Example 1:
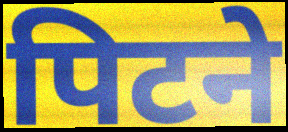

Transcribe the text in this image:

पिटने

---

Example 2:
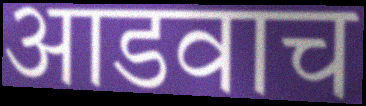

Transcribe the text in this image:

आडवाच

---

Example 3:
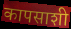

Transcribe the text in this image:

कापसाशी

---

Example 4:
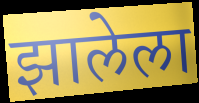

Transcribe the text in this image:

झालेला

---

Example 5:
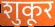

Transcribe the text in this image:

शुकूर